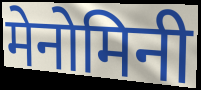
मेनोमिनी